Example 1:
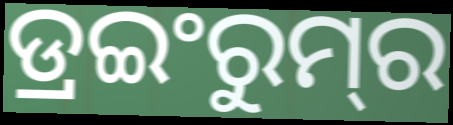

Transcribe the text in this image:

ଡ୍ରଇଂରୁମ୍‌ର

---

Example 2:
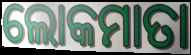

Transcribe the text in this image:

ଲୋକମାତା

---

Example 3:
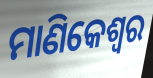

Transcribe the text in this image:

ମାଣିକେଶ୍ଵର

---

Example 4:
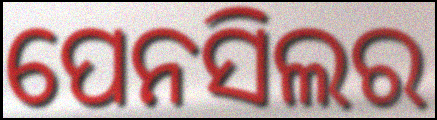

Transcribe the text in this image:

ପେନସିଲର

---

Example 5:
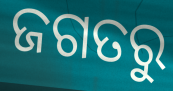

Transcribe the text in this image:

ଜଗତରୁ